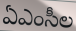
ఏఎంసీల